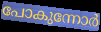
പോകുന്നോർ